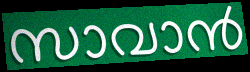
സാവാൻ